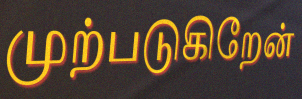
முற்படுகிறேன்